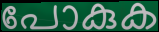
പോകുക